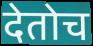
देतोच